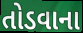
તોડવાના